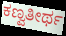
ಕಣ್ವತೀರ್ಥ